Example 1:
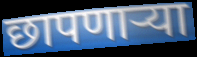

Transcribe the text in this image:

छापणाऱ्या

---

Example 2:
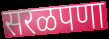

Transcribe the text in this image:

सरळपणा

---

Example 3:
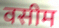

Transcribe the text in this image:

वसीम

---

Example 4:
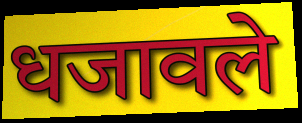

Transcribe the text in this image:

धजावले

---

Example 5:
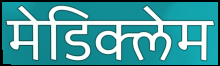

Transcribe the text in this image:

मेडिक्लेम